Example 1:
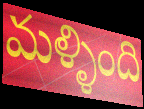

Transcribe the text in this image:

మళ్ళింది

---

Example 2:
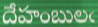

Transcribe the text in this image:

దేహంబులఁ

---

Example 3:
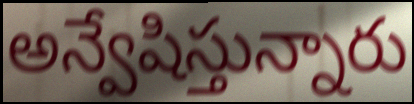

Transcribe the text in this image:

అన్వేషిస్తున్నారు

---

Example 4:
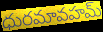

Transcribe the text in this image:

ధురమావహమ్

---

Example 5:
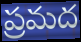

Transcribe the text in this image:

ప్రమద